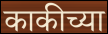
काकीच्या